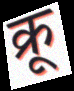
क्रू